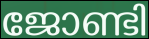
ജോണ്ടി